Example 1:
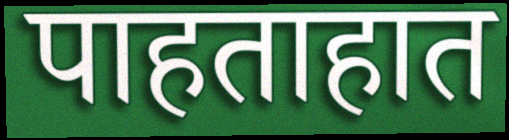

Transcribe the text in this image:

पाहताहात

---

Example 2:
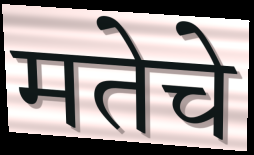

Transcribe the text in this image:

मतेचे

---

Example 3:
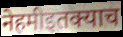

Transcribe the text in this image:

नेहमीइतक्याच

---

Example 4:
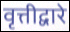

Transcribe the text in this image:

वृत्तीद्वारे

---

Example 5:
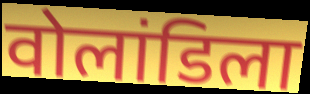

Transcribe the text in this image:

वोलांडिला